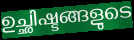
ഉച്ഛിഷ്ടങ്ങളുടെ